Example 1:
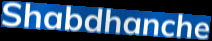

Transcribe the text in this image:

Shabdhanche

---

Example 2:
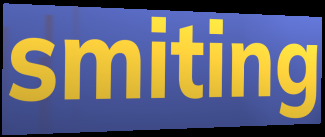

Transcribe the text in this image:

smiting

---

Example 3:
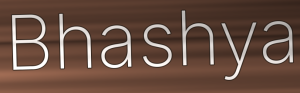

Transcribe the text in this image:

Bhashya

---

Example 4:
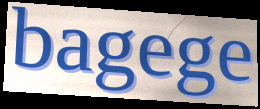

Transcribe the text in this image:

bagege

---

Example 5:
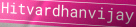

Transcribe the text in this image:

Hitvardhanvijay